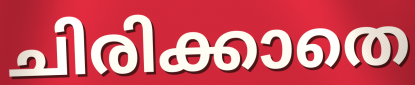
ചിരിക്കാതെ